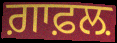
ਗ਼ਾਫ਼ਲ਼